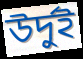
উর্দুই